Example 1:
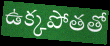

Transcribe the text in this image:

ఉక్కపోతతో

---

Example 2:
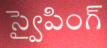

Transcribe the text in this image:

స్వైపింగ్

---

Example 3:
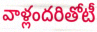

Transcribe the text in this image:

వాళ్లందరితోటీ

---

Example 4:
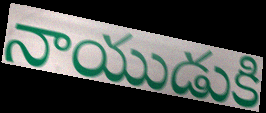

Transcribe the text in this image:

నాయుడుకి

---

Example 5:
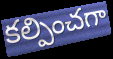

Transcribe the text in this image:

కల్పించగా